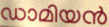
ഡാമിയൻ